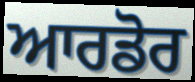
ਆਰਡੋਰ